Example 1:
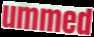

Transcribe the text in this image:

ummed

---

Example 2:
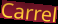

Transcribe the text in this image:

Carrel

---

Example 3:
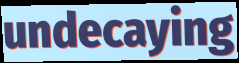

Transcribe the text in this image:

undecaying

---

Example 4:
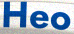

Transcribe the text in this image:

Heo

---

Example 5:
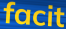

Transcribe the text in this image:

facit